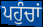
ਪਹੁੰਚਾਂ